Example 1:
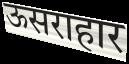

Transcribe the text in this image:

ऊसराहार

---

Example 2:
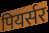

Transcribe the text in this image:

पियर्सर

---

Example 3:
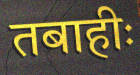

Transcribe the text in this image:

तबाहीः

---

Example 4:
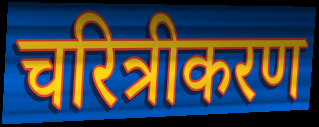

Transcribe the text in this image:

चरित्रीकरण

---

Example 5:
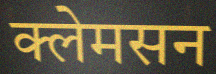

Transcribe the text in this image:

क्लेमसन